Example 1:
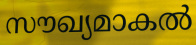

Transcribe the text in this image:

സൗഖ്യമാകൽ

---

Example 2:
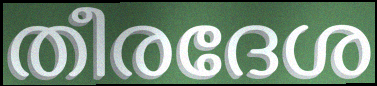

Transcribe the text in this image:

തീരദേശ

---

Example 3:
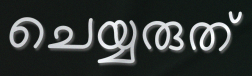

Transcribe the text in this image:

ചെയ്യരുത്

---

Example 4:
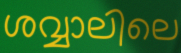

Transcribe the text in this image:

ശവ്വാലിലെ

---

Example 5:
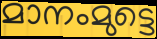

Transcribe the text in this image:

മാനംമുട്ടെ